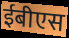
ईबीएस